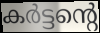
കർട്ടന്റെ